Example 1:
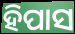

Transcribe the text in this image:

ହିପାସ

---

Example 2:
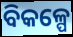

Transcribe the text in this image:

ବିକଳ୍ପେ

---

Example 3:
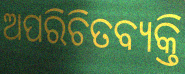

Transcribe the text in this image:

ଅପରିଚିତବ୍ୟକ୍ତି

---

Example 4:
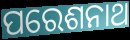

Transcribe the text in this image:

ପରେଶନାଥ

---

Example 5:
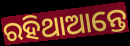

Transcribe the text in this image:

ରହିଥାଆନ୍ତେ